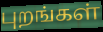
புறங்கள்